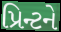
પ્રિન્ટને